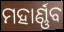
ମହାର୍ଣ୍ଣବ